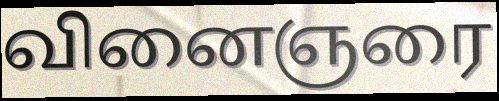
வினைஞரை